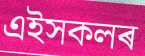
এইসকলৰ